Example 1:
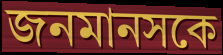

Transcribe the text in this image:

জনমানসকে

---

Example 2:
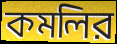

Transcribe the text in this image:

কমলির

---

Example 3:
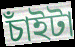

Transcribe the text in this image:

চাঁইটা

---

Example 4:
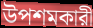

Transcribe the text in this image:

উপশমকারী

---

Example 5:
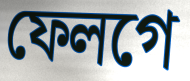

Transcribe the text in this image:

ফেলগে